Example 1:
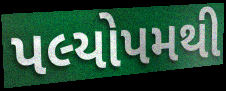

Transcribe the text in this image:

પલ્યોપમથી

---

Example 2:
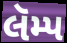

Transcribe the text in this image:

લૅમ્પ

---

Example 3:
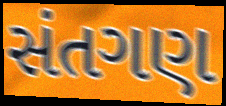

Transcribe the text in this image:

સંતગણ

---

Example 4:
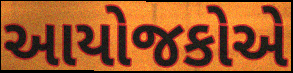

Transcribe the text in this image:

આયોજકોએ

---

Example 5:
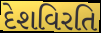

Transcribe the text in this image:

દેશવિરતિ